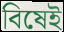
বিষেই